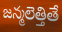
జన్మలెత్తితే